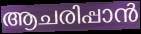
ആചരിപ്പാൻ